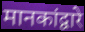
मानकांद्वारे